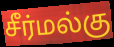
சீர்மல்கு